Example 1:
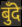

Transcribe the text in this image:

बुँदे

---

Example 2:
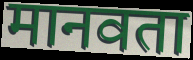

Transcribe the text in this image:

मानवता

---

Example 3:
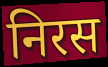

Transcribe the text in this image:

निरस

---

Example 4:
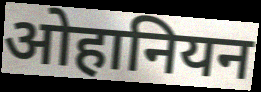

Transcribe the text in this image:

ओहानियन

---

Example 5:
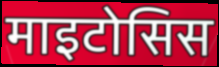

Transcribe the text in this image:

माइटोसिस